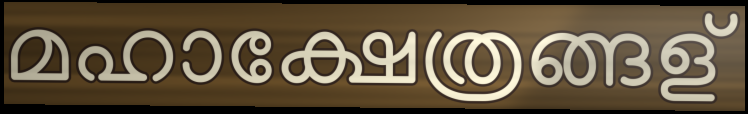
മഹാക്ഷേത്രങ്ങള്